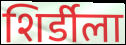
शिर्डीला